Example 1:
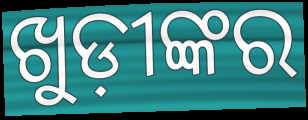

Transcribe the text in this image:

ଖୁଡ଼ୀଙ୍କର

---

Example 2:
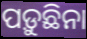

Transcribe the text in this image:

ପଡ଼ୁଛିନା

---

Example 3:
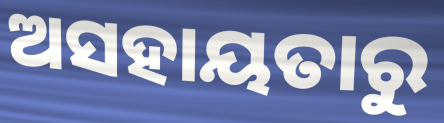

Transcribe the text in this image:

ଅସହାୟତାରୁ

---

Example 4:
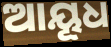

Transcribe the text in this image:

ଆୟୂଧ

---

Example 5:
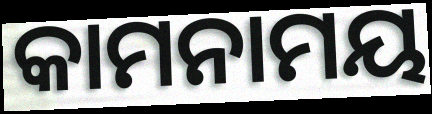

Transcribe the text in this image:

କାମନାମୟ